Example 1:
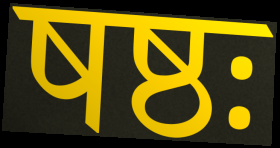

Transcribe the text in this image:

षष्ठः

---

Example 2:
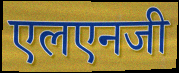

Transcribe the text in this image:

एलएनजी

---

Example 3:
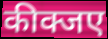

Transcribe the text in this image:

कीक्जए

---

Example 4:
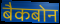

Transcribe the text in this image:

बैकबोन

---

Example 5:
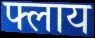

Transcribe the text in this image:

फ्लाय